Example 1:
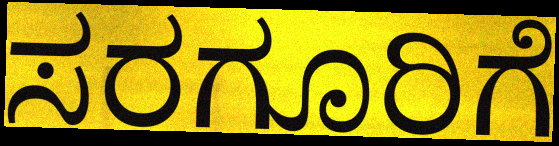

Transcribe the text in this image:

ಸರಗೂರಿಗೆ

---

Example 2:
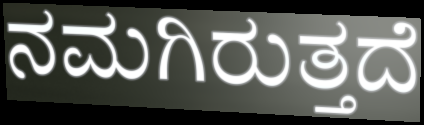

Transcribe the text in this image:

ನಮಗಿರುತ್ತದೆ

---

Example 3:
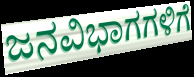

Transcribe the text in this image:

ಜನವಿಭಾಗಗಳಿಗೆ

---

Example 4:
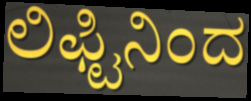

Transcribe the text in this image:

ಲಿಫ್ಟಿನಿಂದ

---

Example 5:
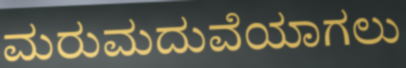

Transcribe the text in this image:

ಮರುಮದುವೆಯಾಗಲು